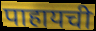
पाहायची